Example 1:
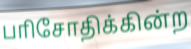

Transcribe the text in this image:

பரிசோதிக்கின்ற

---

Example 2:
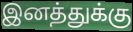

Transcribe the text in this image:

இனத்துக்கு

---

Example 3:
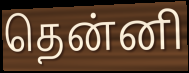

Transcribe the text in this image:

தென்னி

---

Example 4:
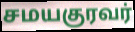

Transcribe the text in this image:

சமயகுரவர்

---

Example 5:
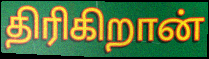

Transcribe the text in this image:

திரிகிறான்